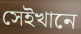
সেইখানে